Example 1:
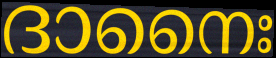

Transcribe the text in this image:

ദാനൈഃ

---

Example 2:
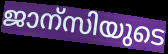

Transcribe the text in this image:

ജാന്സിയുടെ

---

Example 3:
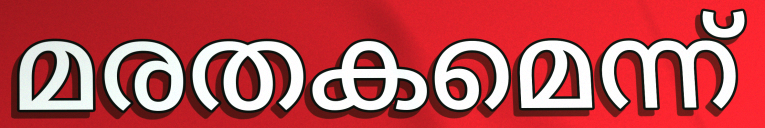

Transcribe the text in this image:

മരതകമെന്ന്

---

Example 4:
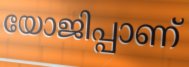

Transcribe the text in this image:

യോജിപ്പാണ്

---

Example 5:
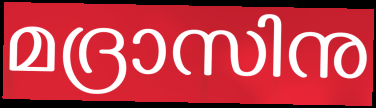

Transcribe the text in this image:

മദ്രാസിനു